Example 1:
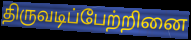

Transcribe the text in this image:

திருவடிப்பேற்றினை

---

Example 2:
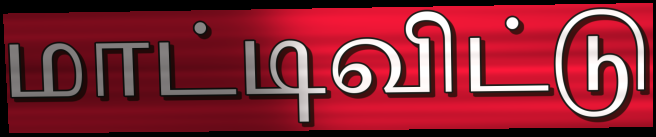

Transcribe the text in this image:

மாட்டிவிட்டு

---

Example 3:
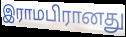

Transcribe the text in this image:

இராமபிரானது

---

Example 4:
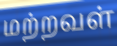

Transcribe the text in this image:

மற்றவள்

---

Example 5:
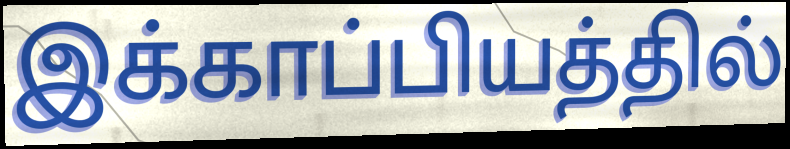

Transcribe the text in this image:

இக்காப்பியத்தில்